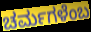
ಚರ್ಮಗಳೆಂಬ